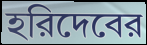
হরিদেবের